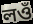
লওঁ